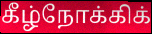
கீழ்நோக்கிக்